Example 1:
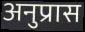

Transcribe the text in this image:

अनुप्रास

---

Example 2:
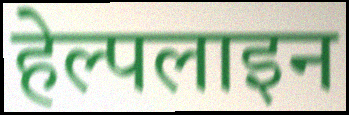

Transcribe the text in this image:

हेल्पलाइन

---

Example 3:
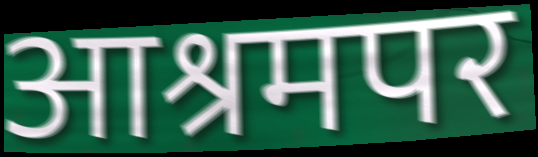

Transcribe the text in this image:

आश्रमपर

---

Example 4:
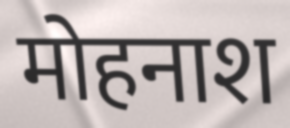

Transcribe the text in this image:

मोहनाश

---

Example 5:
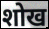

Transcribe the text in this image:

शोख